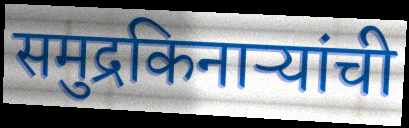
समुद्रकिनाऱ्यांची